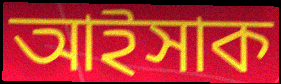
আইসাক